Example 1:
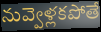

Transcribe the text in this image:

నువ్వెళ్లకపోతే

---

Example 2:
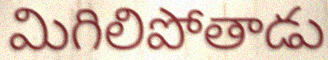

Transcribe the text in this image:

మిగిలిపోతాడు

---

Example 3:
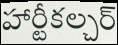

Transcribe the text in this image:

హార్టీకల్చర్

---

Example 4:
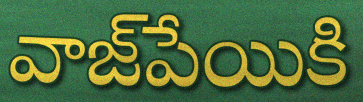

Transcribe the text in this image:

వాజ్‌పేయికి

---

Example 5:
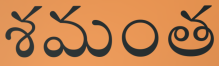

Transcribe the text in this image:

శమంత